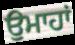
ਉਮਾਹਾਂ